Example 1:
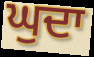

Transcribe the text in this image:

ਘੁਦਾ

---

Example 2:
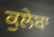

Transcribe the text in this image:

ਕੁਲੇਬਾ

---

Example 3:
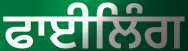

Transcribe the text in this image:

ਫਾਈਲਿੰਗ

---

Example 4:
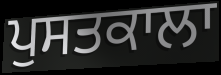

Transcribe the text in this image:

ਪੁਸਤਕਾਲਾ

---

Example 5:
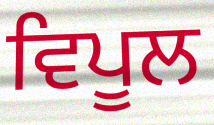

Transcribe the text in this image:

ਵਿਪੂਲ